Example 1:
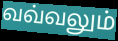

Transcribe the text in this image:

வவ்வலும்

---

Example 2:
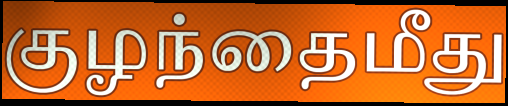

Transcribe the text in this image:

குழந்தைமீது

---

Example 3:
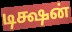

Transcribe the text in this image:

டிக்ஷன்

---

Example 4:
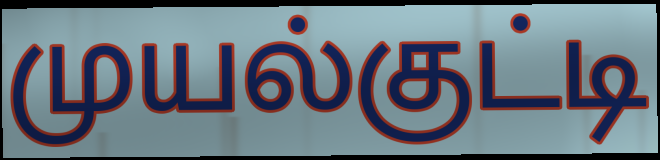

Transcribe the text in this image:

முயல்குட்டி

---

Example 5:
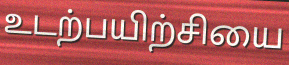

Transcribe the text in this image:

உடற்பயிற்சியை